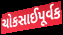
ચોકસાઈપૂર્વક